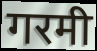
गरमी